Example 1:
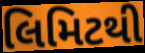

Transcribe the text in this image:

લિમિટથી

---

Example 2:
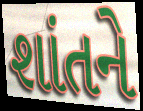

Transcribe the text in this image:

શાંતને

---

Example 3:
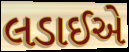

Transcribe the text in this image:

લડાઈએ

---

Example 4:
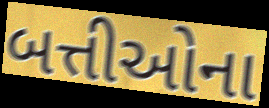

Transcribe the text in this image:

બત્તીઓના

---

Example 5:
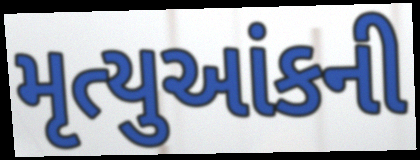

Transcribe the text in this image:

મૃત્યુઆંકની